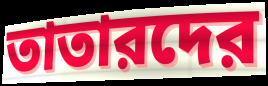
তাতারদের